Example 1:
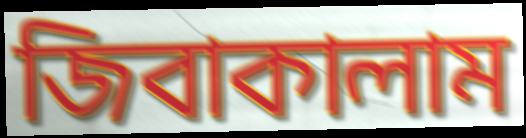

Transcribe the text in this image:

জিবাকালাম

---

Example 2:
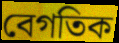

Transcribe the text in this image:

বেগতিক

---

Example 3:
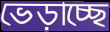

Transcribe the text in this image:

ভেড়াচ্ছে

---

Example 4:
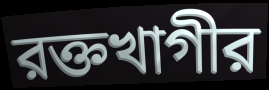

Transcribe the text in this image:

রক্তখাগীর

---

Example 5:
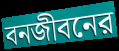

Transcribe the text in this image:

বনজীবনের